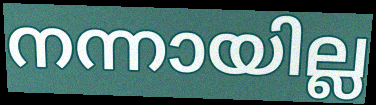
നന്നായില്ല